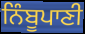
ਨਿੰਬੂਪਾਣੀ